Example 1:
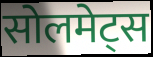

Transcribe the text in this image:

सोलमेट्स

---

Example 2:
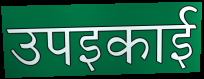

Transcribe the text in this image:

उपइकाई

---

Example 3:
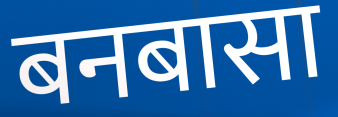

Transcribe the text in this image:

बनबासा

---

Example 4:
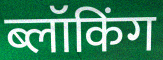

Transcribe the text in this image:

ब्लॉकिंग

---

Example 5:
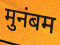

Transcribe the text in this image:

मुनंबम